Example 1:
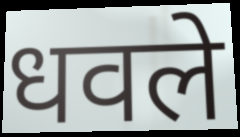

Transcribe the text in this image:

धवले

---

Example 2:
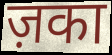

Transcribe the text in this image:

ज़का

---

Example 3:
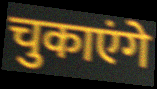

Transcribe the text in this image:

चुकाएंगे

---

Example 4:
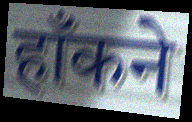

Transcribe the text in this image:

हाँकने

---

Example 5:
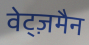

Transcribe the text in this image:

वेट्ज़मैन